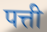
पत्ती